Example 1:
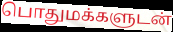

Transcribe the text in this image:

பொதுமக்களுடன்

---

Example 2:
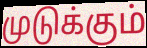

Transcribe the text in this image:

முடுக்கும்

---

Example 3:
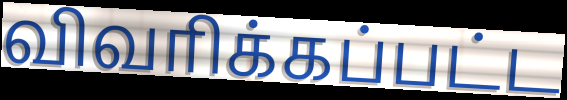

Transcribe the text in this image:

விவரிக்கப்பட்ட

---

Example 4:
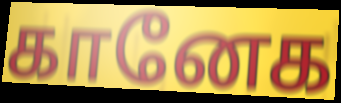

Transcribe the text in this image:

கானேக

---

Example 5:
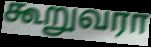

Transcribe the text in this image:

கூறுவரா